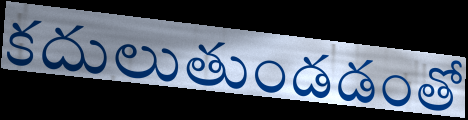
కదులుతుండడంతో